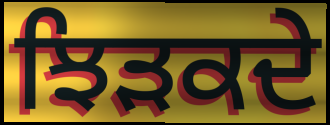
ਝਿੜਕਦੇ